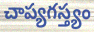
చాప్యగస్త్యం